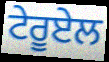
ਟੇਰੂਏਲ